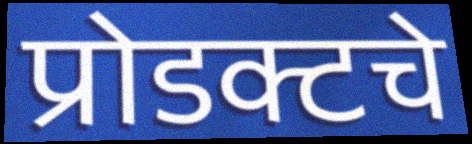
प्रोडक्टचे